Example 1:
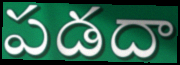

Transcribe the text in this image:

పడదా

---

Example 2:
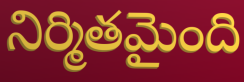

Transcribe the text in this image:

నిర్మితమైంది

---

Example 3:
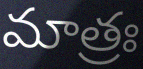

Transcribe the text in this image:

మాత్రః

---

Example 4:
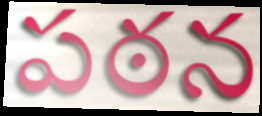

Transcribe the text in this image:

పఠన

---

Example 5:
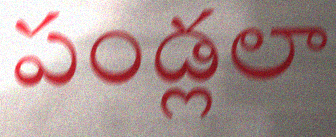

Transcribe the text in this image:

పండ్లలా